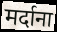
मर्दाना